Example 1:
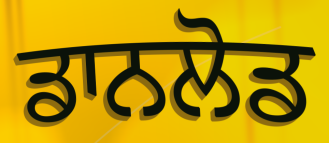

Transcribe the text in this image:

ਡਾਨਲੋਡ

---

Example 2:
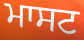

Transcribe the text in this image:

ਮਾਸਟ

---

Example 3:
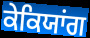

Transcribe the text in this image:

ਕੇਕਿਯਾਂਗ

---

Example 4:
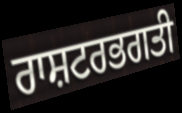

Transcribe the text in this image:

ਰਾਸ਼ਟਰਭਗਤੀ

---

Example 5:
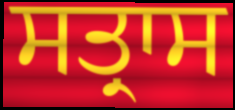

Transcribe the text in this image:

ਸਤ੍ਰਾਸ